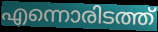
എന്നൊരിടത്ത്